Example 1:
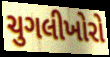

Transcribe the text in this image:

ચુગલીખોરો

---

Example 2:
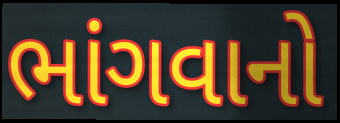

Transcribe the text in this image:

ભાંગવાનો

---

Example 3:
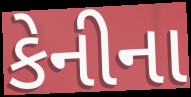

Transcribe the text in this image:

કેનીના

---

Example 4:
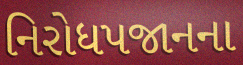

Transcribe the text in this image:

નિરોધપજાનના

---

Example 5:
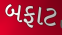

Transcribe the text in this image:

બફાટ